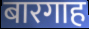
बारगाह